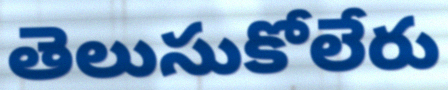
తెలుసుకోలేరు